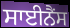
ਸਾਈਨੈਂਸ